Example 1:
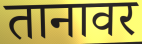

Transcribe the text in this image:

तानावर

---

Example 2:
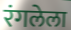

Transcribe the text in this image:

रंगलेला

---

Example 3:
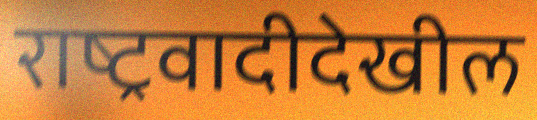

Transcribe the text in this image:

राष्ट्रवादीदेखील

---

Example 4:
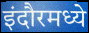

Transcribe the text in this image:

इंदौरमध्ये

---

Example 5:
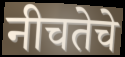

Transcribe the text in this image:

नीचतेचे